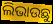
ଲିଭାଉଛୁ